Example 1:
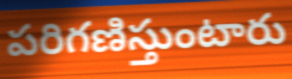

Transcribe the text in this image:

పరిగణిస్తుంటారు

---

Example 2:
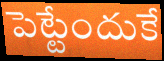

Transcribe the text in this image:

పెట్టేందుకే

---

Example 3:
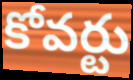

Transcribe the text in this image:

కోవర్టు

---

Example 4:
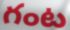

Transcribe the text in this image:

గంట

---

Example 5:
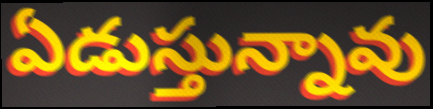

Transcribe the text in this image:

ఏడుస్తున్నావు